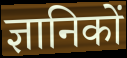
ज्ञानिकों